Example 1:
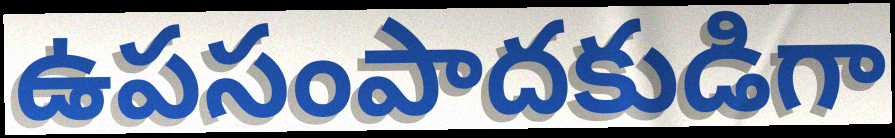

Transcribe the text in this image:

ఉపసంపాదకుడిగా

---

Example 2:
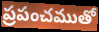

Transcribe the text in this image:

ప్రపంచముతో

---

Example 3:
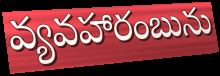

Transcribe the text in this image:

వ్యవహారంబును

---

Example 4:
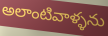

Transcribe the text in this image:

అలాంటివాళ్ళను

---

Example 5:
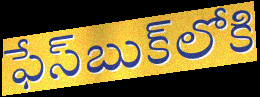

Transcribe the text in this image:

ఫేస్‌బుక్‌లోకి